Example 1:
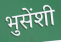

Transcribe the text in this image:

भुसेंशी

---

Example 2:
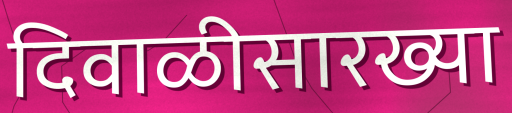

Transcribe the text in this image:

दिवाळीसारख्या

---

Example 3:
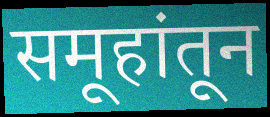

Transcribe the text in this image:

समूहांतून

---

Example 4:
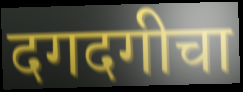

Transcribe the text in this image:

दगदगीचा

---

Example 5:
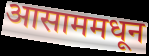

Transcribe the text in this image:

आसाममधून